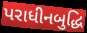
પરાધીનબુદ્ધિ